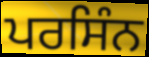
ਪਰਸਿੰਨ